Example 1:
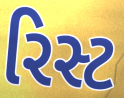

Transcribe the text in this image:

રિસ્ટ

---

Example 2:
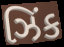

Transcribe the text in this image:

ઝિંક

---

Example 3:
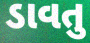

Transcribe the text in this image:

ડાવતુ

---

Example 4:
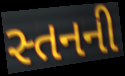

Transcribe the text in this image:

સ્તનની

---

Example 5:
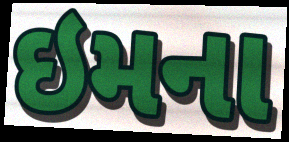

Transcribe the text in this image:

ઇમના